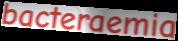
bacteraemia